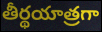
తీర్థయాత్రగా